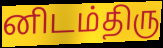
னிடம்திரு